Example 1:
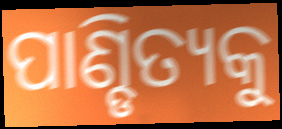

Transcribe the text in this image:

ପାଣ୍ଡିତ୍ୟକୁ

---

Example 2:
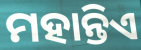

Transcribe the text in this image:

ମହାନ୍ତିଏ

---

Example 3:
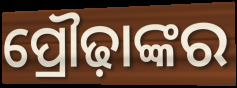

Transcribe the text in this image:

ପ୍ରୌଢ଼ାଙ୍କର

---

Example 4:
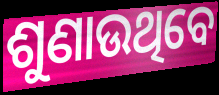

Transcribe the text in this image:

ଶୁଣାଉଥିବେ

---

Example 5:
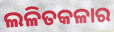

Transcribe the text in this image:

ଲଳିତକଳାର